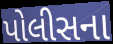
પોલીસના